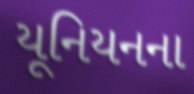
યૂનિયનના